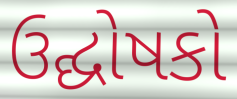
ઉદ્ઘોષકો